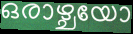
ഒരാഴ്ചയോ